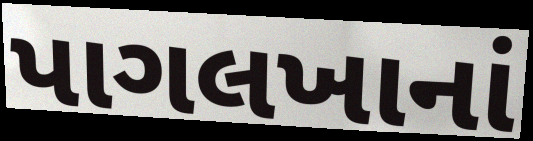
પાગલખાનાં